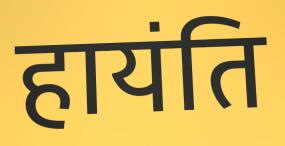
हायंति